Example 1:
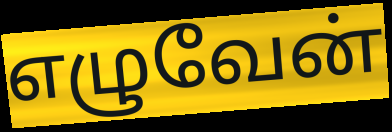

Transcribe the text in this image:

எழுவேன்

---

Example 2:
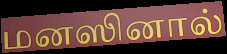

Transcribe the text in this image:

மனஸினால்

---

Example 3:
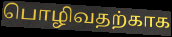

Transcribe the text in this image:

பொழிவதற்காக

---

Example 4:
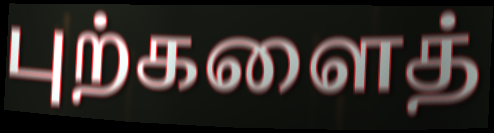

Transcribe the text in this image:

புற்களைத்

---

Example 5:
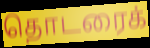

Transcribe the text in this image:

தொடரைக்